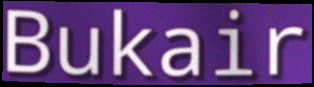
Bukair